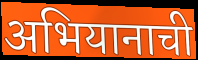
अभियानाची